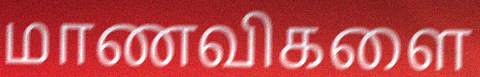
மாணவிகளை